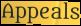
Appeals